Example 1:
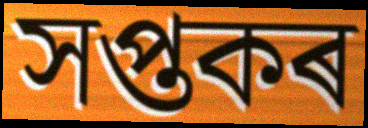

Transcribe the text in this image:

সপ্তকৰ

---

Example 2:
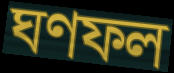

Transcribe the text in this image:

ঘণফল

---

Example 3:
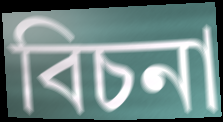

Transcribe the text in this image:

বিচনা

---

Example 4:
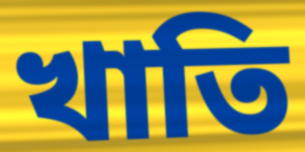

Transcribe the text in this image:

খাতি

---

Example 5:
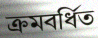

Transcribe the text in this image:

ক্ৰমবৰ্ধিত